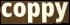
coppy